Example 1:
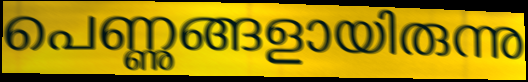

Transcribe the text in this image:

പെണ്ണുങ്ങളായിരുന്നു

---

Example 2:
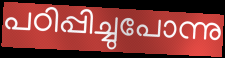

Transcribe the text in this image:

പഠിപ്പിച്ചുപോന്നു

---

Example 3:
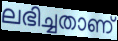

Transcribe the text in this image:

ലഭിച്ചതാണ്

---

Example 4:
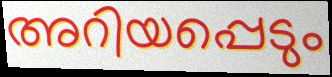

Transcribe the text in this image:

അറിയപ്പെടും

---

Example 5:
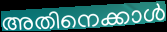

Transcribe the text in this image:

അതിനെക്കാൾ